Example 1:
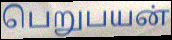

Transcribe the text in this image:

பெறுபயன்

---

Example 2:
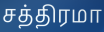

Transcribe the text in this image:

சத்திரமா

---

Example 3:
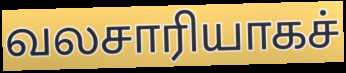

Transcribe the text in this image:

வலசாரியாகச்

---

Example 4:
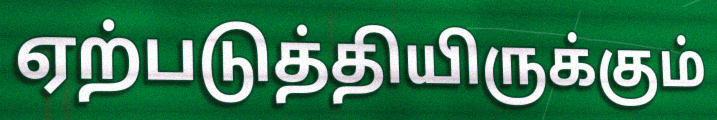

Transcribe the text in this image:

ஏற்படுத்தியிருக்கும்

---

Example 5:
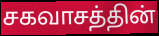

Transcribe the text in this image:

சகவாசத்தின்